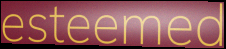
esteemed